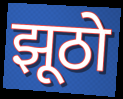
झूठो